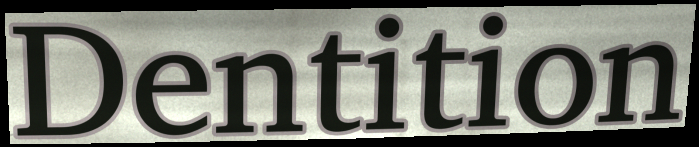
Dentition